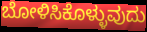
ಬೋಳಿಸಿಕೊಳ್ಳುವುದು